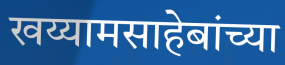
खय्यामसाहेबांच्या